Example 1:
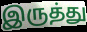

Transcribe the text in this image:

இருத்து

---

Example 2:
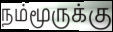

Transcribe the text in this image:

நம்மூருக்கு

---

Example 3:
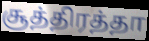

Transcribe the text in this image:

சூத்திரத்தா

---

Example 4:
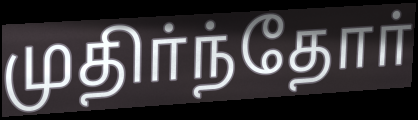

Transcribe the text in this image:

முதிர்ந்தோர்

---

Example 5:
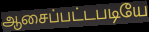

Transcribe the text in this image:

ஆசைப்பட்டபடியே